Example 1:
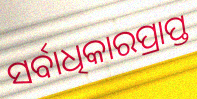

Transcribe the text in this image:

ସର୍ବାଧିକାରପ୍ରାପ୍ତ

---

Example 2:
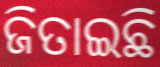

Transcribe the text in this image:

ଜିତାଇଛି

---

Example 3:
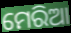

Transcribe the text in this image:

ମେରିଆ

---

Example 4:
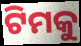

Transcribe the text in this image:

ଟିମକୁ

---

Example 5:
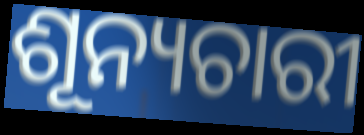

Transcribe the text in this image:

ଶୂନ୍ୟଚାରୀ